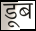
डूब